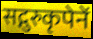
सद्गुरुकृपेनें